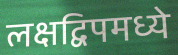
लक्षद्विपमध्ये